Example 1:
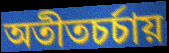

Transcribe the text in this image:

অতীতচর্চায়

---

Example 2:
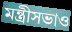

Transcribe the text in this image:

মন্ত্রীসভাও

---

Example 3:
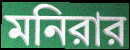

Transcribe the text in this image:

মনিরার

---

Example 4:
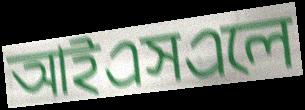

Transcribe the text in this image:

আইএসএলে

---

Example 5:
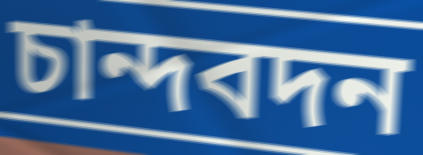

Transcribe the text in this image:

চান্দবদন